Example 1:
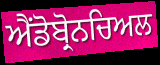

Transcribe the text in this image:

ਐਂਡੋਬ੍ਰੋਨਚਿਅਲ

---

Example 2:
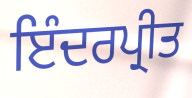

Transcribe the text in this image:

ਇੰਦਰਪ੍ਰੀਤ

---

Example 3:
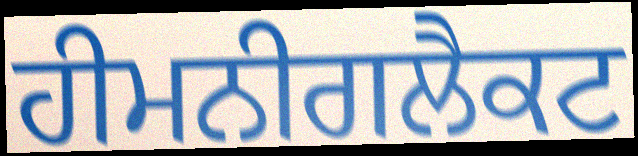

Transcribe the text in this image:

ਹੀਮਨੀਗਲੈਕਟ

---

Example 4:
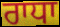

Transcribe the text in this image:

ਰਾਧਾ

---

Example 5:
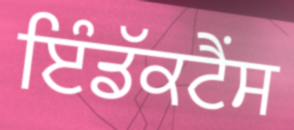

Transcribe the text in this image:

ਇੰਡੱਕਟੈਂਸ